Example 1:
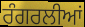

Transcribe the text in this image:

ਰੰਗਰਲੀਆਂ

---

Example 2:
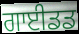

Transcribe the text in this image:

ਗਾਈਡਡ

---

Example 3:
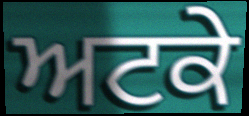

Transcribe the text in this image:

ਅਟਕੇ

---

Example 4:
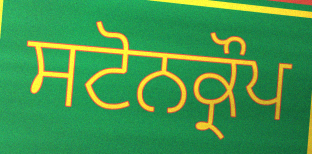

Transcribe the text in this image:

ਸਟੋਨਕ੍ਰੌਪ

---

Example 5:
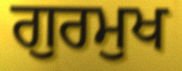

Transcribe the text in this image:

ਗੁਰਮੁਖ